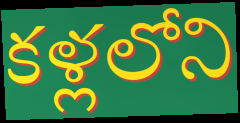
కళ్లలోని